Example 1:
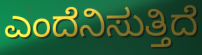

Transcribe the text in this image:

ಎಂದೆನಿಸುತ್ತಿದೆ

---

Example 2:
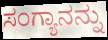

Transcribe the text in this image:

ಸಂಗ್ಯಾನನ್ನು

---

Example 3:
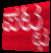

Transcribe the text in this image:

ಪಟ್ಟ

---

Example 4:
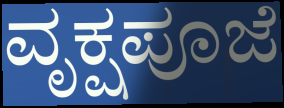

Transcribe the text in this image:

ವೃಕ್ಷಪೂಜೆ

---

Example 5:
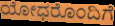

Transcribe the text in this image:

ಯೋಧರೊಂದಿಗೆ